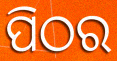
ପିଠର